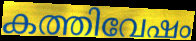
കത്തിവേഷം